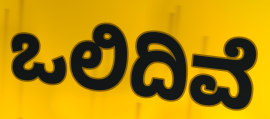
ಒಲಿದಿವೆ